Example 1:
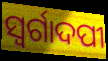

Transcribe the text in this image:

ସ୍ବର୍ଗାଦପୀ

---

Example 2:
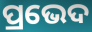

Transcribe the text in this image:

ପ୍ରଭେଦ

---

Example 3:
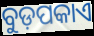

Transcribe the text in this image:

ବୁଡ଼ପକାଏ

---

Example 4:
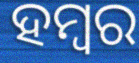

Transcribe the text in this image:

ହମ୍ବର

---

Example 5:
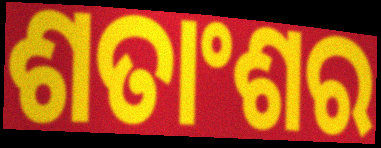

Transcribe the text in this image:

ଶତାଂଶର